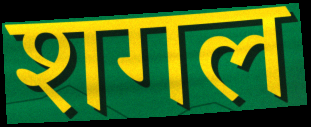
शगल